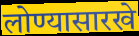
लोण्यासारखे